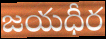
జయధీర